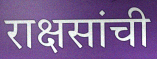
राक्षसांची